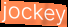
jockey